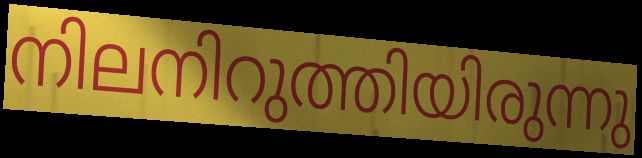
നിലനിറുത്തിയിരുന്നു